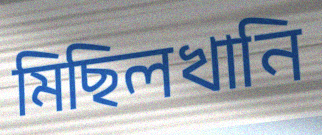
মিছিলখানি